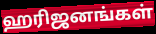
ஹரிஜனங்கள்